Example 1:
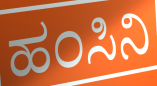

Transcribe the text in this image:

ಹಂಸಿನಿ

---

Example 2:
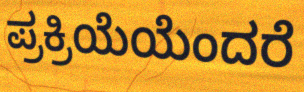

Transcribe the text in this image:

ಪ್ರಕ್ರಿಯೆಯೆಂದರೆ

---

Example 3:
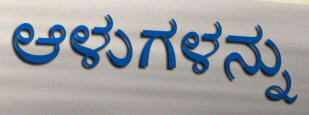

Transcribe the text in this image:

ಆಳುಗಳನ್ನು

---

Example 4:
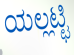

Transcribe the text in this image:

ಯಲ್ಲಟ್ಟಿ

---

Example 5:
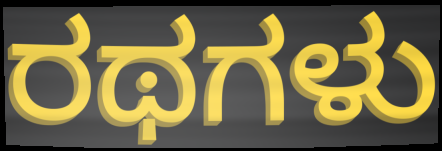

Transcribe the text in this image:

ರಥಗಳು